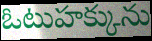
ఓటుహక్కును